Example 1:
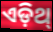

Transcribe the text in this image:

ଏଡ଼ିଥ୍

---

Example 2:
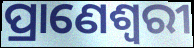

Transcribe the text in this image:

ପ୍ରାଣେଶ୍ୱରୀ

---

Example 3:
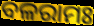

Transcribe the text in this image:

ବଳରାମଃ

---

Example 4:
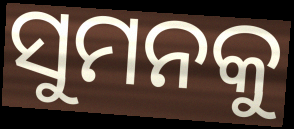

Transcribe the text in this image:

ସୁମନକୁ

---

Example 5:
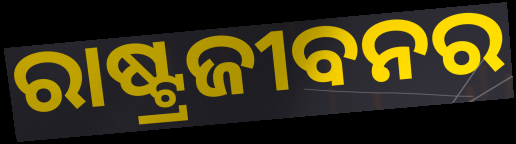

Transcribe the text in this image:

ରାଷ୍ଟ୍ରଜୀବନର